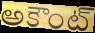
అకౌంట్